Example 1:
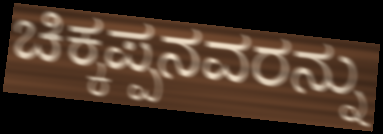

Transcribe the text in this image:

ಚಿಕ್ಕಪ್ಪನವರನ್ನು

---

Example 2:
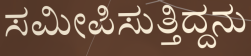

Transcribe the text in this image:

ಸಮೀಪಿಸುತ್ತಿದ್ದನು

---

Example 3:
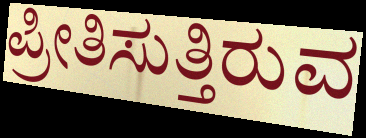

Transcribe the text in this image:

ಪ್ರೀತಿಸುತ್ತಿರುವ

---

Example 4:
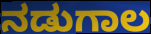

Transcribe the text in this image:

ನಡುಗಾಲ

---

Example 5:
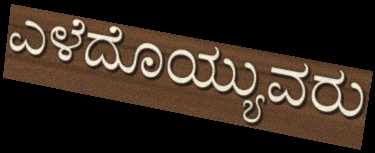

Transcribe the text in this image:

ಎಳೆದೊಯ್ಯುವರು